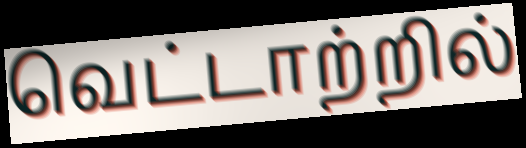
வெட்டாற்றில்